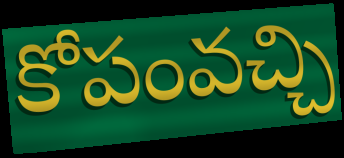
కోపంవచ్చి